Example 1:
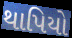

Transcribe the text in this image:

થાપિયો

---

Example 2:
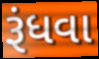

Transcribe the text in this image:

રૂંધવા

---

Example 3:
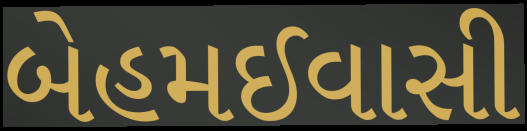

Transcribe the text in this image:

બેહમઈવાસી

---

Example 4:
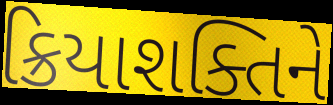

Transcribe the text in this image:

ક્રિયાશક્તિને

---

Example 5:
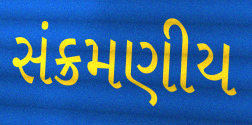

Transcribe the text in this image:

સંક્રમણીય